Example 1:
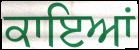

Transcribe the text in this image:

ਕਾਇਆਂ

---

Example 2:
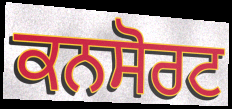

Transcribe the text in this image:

ਕਨਸੋਰਟ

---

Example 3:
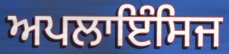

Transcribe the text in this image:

ਅਪਲਾਇੰਸਿਜ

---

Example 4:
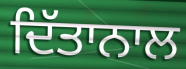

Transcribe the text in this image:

ਦਿੱਤਾਨਾਲ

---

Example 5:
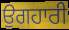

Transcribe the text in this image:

ਉਗਹਾਰੀ